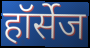
हॉर्सेज